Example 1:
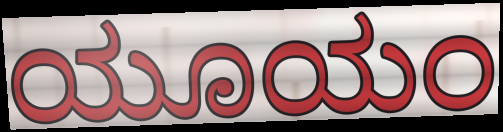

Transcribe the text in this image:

ಯೂಯಂ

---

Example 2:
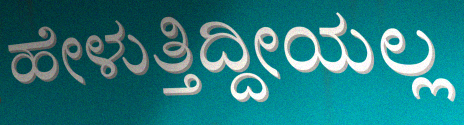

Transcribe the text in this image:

ಹೇಳುತ್ತಿದ್ದೀಯಲ್ಲ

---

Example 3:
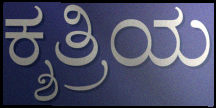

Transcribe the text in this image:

ಕ್ಶತ್ರಿಯ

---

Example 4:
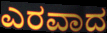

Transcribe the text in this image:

ಎರವಾದ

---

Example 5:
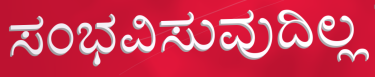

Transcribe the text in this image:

ಸಂಭವಿಸುವುದಿಲ್ಲ